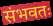
संभवतः